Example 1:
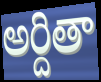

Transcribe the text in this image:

అర్దితా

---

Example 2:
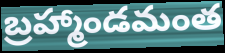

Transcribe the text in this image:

బ్రహ్మాండమంత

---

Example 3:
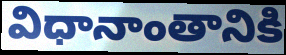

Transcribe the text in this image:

విధానాంతానికి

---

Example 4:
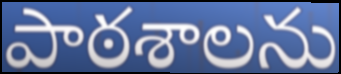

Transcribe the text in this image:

పాఠశాలను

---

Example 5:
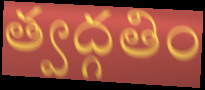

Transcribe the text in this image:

త్వద్గతిం